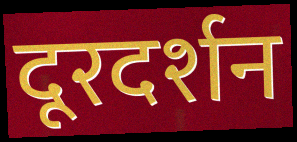
दूरदर्शन